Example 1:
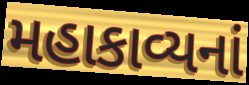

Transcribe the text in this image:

મહાકાવ્યનાં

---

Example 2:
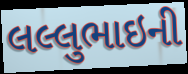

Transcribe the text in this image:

લલ્લુભાઇની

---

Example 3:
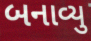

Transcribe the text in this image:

બનાવ્યુ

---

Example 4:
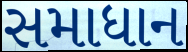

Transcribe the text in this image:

સમાધાન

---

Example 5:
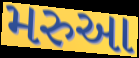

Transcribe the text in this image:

મરુઆ